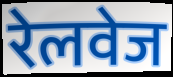
रेलवेज